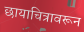
छायाचित्रावरून